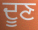
ਦੂਣ